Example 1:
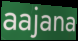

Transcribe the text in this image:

aajana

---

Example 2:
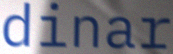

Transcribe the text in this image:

dinar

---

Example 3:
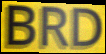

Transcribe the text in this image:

BRD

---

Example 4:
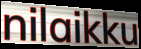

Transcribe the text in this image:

nilaikku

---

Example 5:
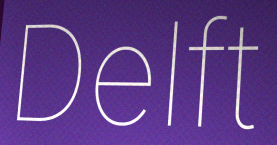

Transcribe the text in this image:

Delft